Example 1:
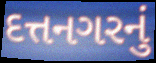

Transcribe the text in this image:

દત્તનગરનું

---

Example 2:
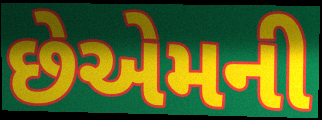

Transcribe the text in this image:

છેએમની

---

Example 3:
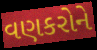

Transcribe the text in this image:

વણકરોને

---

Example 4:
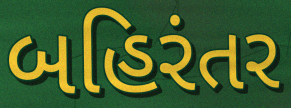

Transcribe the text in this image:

બહિરંતર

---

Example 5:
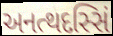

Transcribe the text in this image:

અનત્થદસ્સિં